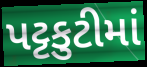
પટ્ટકુટીમાં